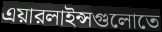
এয়ারলাইন্সগুলোতে